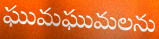
ఘుమఘుమలను